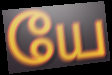
யே